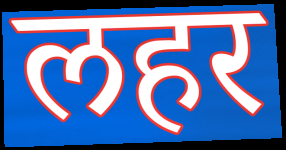
लहर